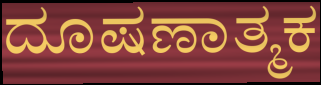
ದೂಷಣಾತ್ಮಕ